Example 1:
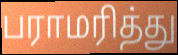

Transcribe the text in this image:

பராமரித்து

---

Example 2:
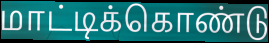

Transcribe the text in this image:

மாட்டிக்கொண்டு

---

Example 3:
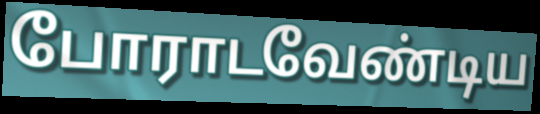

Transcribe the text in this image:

போராடவேண்டிய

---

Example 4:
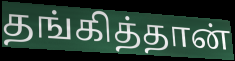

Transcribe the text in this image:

தங்கித்தான்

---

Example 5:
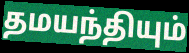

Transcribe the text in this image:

தமயந்தியும்